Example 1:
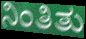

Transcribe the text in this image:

ನಿಂತಿತು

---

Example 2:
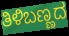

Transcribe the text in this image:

ತಿಳಿಬಣ್ಣದ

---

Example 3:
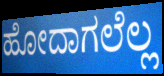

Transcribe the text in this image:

ಹೋದಾಗಲೆಲ್ಲ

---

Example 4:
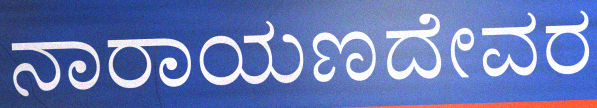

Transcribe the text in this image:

ನಾರಾಯಣದೇವರ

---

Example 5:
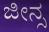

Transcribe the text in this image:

ಜೀನ್ಸ